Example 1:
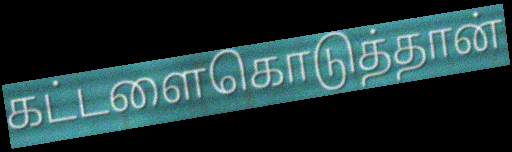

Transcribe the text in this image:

கட்டளைகொடுத்தான்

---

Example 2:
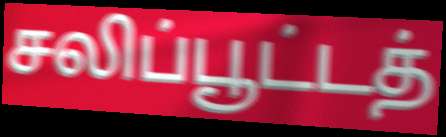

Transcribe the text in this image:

சலிப்பூட்டத்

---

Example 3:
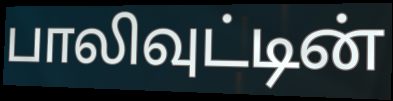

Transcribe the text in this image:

பாலிவுட்டின்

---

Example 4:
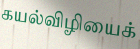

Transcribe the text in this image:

கயல்விழியைக்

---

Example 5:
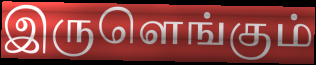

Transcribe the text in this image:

இருளெங்கும்